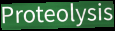
Proteolysis